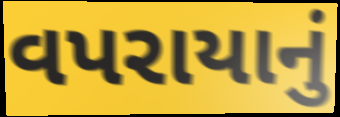
વપરાયાનું